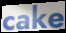
cake